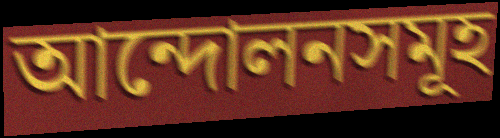
আন্দোলনসমূহ